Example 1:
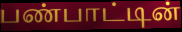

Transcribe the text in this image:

பண்பாட்டின்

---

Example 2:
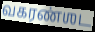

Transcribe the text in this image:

வகரண்ஶட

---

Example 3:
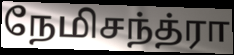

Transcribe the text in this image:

நேமிசந்த்ரா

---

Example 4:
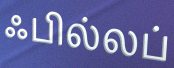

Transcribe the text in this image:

ஃபில்லப்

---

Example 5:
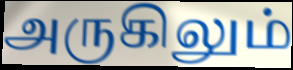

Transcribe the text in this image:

அருகிலும்